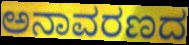
ಅನಾವರಣದ